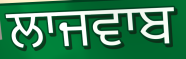
ਲਾਜਵਾਬ